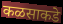
कळसाकडे